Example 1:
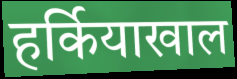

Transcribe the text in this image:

हर्कियाखाल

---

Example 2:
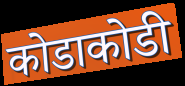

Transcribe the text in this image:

कोडाकोडी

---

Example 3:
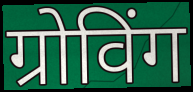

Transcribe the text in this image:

ग्रोविंग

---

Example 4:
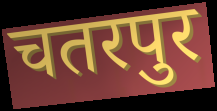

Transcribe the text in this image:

चतरपुर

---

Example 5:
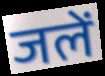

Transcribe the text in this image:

जलें